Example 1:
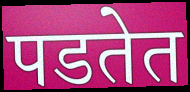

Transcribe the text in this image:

पडतेत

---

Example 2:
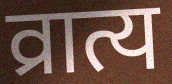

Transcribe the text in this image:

व्रात्य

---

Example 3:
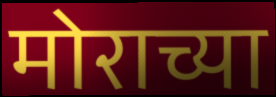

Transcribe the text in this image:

मोराच्या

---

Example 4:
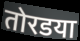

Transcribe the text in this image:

तोरडया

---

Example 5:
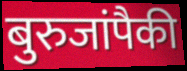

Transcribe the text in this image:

बुरुजांपैकी